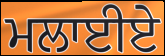
ਮਲਾਈਏ